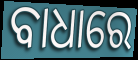
ବାଧାରେ